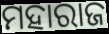
ମହାରାଜ